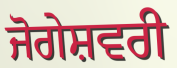
ਜੋਗੇਸ਼ਵਰੀ